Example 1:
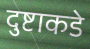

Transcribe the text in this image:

दुष्टाकडे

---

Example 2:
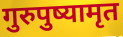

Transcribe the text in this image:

गुरुपुष्यामृत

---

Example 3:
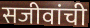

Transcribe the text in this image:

सजीवांची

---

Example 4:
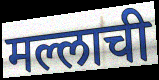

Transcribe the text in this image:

मल्लाची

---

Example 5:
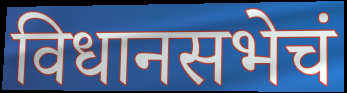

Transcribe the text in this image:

विधानसभेचं